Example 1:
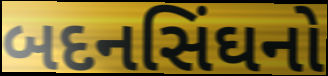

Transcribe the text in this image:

બદનસિંઘનો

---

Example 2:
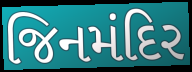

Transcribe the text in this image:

જિનમંદિર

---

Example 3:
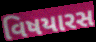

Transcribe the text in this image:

વિષયારસ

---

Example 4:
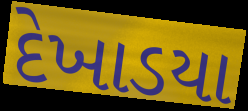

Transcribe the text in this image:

દેખાડયા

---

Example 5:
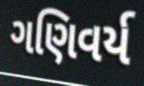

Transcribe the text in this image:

ગણિવર્ય